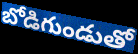
బోడిగుండుతో